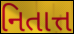
નિતાત્ત